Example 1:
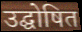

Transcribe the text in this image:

उद्घोषित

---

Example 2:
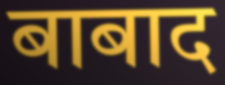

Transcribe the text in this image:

बाबाद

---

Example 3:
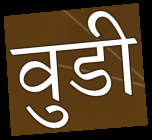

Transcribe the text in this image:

वुडी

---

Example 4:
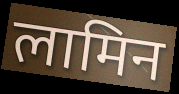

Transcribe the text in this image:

लामिन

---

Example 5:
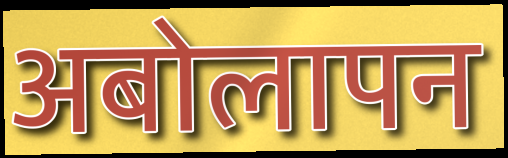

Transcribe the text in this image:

अबोलापन